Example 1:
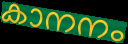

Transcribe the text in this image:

കാനനം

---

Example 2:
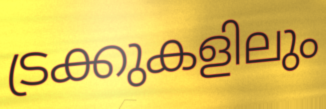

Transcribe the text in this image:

ട്രക്കുകളിലും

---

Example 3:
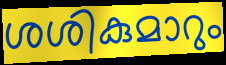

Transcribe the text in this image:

ശശികുമാറും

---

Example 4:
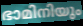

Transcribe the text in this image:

ഭാമിനിയും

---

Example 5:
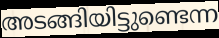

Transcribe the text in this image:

അടങ്ങിയിട്ടുണ്ടെന്ന